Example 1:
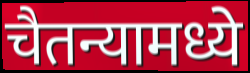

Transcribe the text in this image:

चैतन्यामध्ये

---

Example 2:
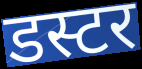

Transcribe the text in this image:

डस्टर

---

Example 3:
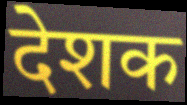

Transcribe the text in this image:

देशक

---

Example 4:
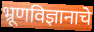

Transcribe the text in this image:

भ्रूणविज्ञानाचे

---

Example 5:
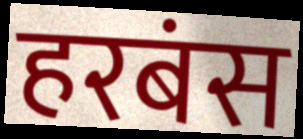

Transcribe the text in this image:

हरबंस